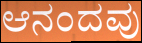
ಆನಂದವು